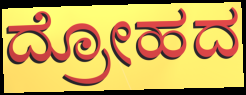
ದ್ರೋಹದ